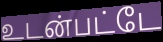
உடன்பட்டே